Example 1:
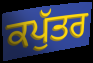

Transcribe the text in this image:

ਕਪੁੱਤਰ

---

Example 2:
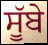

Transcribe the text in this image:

ਸੂੱਬੇ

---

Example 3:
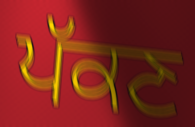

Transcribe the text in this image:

ਪੱਕਣ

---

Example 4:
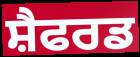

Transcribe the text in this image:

ਸ਼ੈਫਰਡ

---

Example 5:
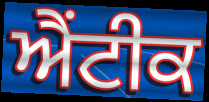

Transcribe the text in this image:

ਐਂਟੀਕ